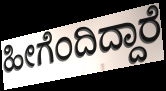
ಹೀಗೆಂದಿದ್ದಾರೆ